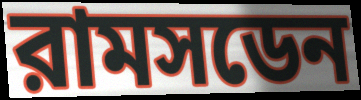
রামসডেন